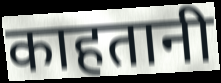
काहतानी